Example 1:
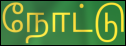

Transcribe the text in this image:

நோட்டு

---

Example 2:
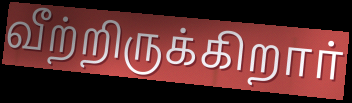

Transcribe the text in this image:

வீற்றிருக்கிறார்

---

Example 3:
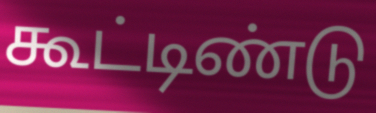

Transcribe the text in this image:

கூட்டிண்டு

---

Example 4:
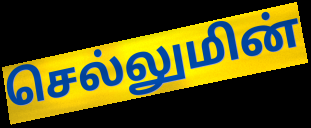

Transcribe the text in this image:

செல்லுமின்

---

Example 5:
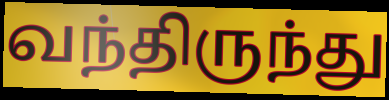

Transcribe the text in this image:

வந்திருந்து